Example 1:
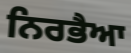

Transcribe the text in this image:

ਨਿਰਭੈਆ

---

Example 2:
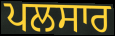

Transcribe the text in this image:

ਪਲਸਾਰ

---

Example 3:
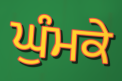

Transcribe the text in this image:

ਘੁੰਮਕੇ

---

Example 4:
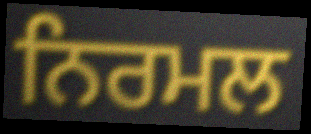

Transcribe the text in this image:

ਨਿਰਮਲ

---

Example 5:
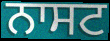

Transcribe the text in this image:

ਨਾਸਟ